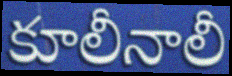
కూలీనాలీ